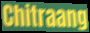
Chitraang